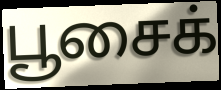
பூசைக்